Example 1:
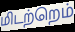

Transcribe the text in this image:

மிடற்றெம்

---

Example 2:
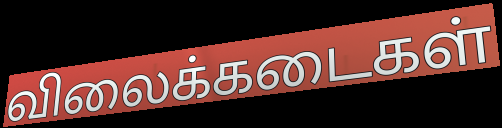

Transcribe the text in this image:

விலைக்கடைகள்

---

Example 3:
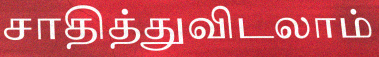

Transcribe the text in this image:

சாதித்துவிடலாம்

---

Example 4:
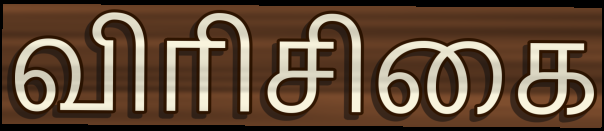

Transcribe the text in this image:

விரிசிகை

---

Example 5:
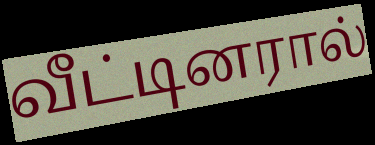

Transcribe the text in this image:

வீட்டினரால்